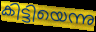
കിട്ടിയെന്നു